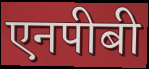
एनपीबी